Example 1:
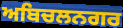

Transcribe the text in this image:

ਅਬਿਚਲਨਗਰ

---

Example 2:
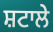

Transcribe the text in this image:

ਸ਼ਟਾਲੇ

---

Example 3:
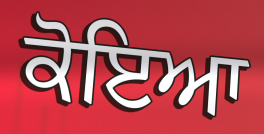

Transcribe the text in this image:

ਕੋਇਆ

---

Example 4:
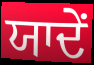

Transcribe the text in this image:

ਯਾਦੇਂ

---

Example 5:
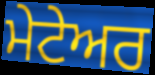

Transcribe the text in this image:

ਮੇਟੇਅਰ